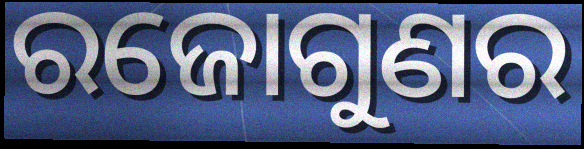
ରଜୋଗୁଣର